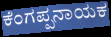
ಕೆಂಗಪ್ಪನಾಯಕ